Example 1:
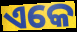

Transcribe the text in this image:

ଏକେ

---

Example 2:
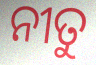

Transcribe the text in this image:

ନୀତୁ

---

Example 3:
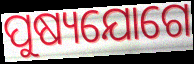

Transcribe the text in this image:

ପୁଷ୍ୟଯୋଗେ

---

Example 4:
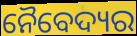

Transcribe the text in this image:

ନୈବେଦ୍ୟର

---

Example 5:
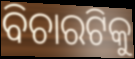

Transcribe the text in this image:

ବିଚାରଟିକୁ